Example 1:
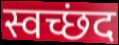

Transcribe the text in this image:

स्वच्छंद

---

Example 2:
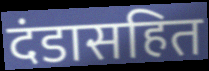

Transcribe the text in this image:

दंडासहित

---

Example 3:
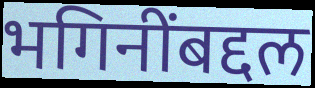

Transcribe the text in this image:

भगिनींबद्दल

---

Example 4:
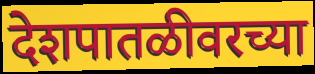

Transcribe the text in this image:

देशपातळीवरच्या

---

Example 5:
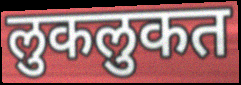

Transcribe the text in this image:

लुकलुकत